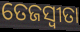
ତେଜସ୍ଵୀତା